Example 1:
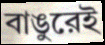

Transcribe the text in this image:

বাঙুরেই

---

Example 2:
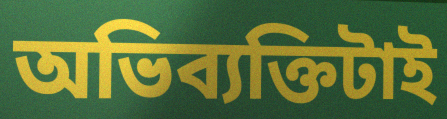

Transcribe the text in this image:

অভিব্যক্তিটাই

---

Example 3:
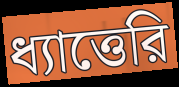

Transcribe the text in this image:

ধ্যাত্তেরি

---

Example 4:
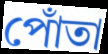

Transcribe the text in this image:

পোঁতা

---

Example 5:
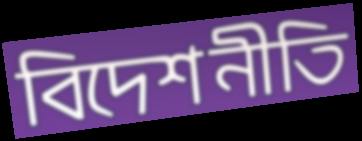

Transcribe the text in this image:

বিদেশনীতি